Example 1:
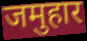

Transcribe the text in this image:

जमुहार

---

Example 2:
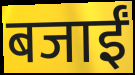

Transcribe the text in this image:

बजाईं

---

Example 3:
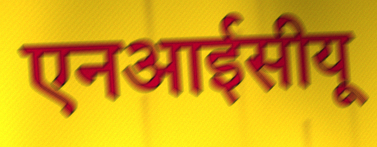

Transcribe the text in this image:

एनआईसीयू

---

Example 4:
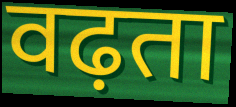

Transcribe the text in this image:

वढ़ता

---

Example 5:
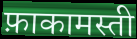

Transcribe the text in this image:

फ़ाकामस्ती